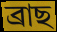
ব্ৰাছ